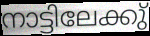
നാട്ടിലേക്കു്